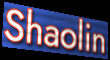
Shaolin